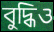
বুদ্ধিও